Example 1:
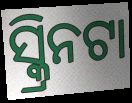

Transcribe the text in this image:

ସ୍କ୍ରିନଟା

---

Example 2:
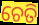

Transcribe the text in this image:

ଚେତି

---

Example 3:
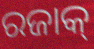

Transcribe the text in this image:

ରଜାକ୍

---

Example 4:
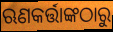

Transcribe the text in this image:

ଋଣକର୍ତ୍ତାଙ୍କଠାରୁ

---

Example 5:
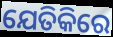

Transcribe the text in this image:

ଯେତିକିରେ